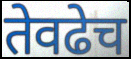
तेवढेच